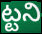
ట్టని